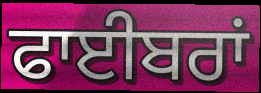
ਫਾਈਬਰਾਂ